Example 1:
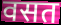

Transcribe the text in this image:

वसत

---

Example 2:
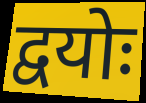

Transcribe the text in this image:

द्वयोः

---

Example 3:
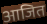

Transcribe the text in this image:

आजित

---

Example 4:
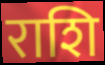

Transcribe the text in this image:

राशि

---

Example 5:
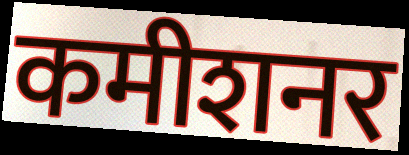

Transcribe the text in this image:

कमीशनर